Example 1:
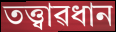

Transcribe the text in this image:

তত্ত্বাৱধান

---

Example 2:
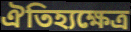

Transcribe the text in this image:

ঐতিহ্যক্ষেত্ৰ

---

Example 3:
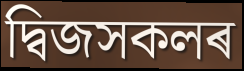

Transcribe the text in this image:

দ্বিজসকলৰ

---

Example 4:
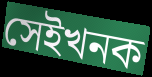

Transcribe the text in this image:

সেইখনক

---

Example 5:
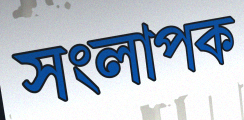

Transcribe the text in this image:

সংলাপক